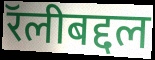
रॅलीबद्दल